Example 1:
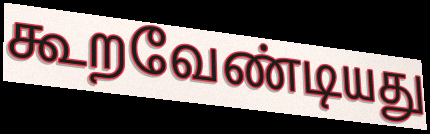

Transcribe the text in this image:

கூறவேண்டியது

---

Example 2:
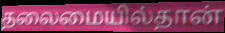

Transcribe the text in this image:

தலைமையில்தான்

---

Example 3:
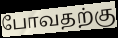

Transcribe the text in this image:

போவதற்கு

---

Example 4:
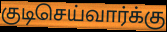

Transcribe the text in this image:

குடிசெய்வார்க்கு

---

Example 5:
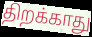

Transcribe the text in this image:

திறக்காது